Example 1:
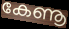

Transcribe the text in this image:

കേണൂ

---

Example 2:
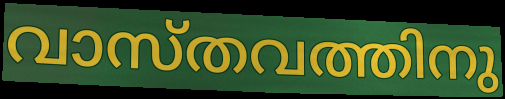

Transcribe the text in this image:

വാസ്തവത്തിനു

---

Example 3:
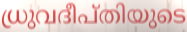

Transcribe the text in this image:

ധ്രുവദീപ്തിയുടെ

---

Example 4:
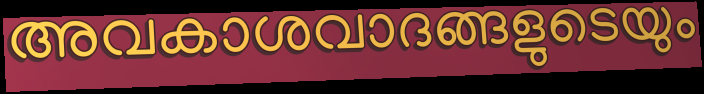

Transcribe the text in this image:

അവകാശവാദങ്ങളുടെയും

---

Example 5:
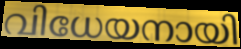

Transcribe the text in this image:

വിധേയനായി